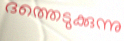
ദത്തെടുക്കുന്നു